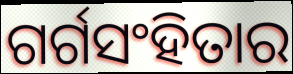
ଗର୍ଗସଂହିତାର